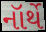
નૉર્થે